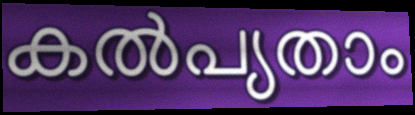
കൽപ്യതാം